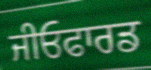
ਜੀਓਫਾਰਡ